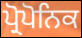
ਪ੍ਰੋਪੋਨਿਕ